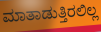
ಮಾತಾಡುತ್ತಿರಲಿಲ್ಲ